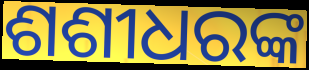
ଶଶୀଧରଙ୍କ